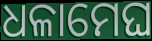
ଧଳାମେଘ